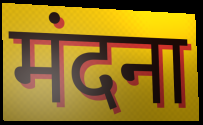
मंदना